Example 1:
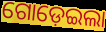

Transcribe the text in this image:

ଗୋଡ଼େଇଲା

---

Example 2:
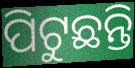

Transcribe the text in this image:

ପିଟୁଛନ୍ତି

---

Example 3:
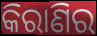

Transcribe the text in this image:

କିରାଣିର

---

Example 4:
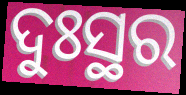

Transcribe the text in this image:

ଦୁଃସ୍ଥର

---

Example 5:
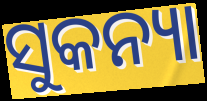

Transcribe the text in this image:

ସୁକନ୍ୟା